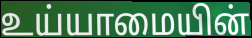
உய்யாமையின்